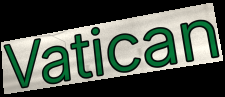
Vatican